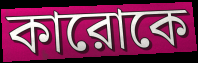
কারোকে